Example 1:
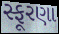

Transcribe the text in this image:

સ્ફૂરણા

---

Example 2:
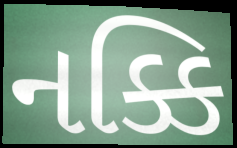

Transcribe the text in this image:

નક્કિ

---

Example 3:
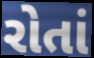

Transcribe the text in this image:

રોતાં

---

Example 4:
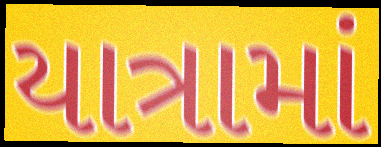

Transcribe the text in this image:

યાત્રામાં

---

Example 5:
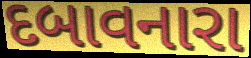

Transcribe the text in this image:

દબાવનારા